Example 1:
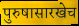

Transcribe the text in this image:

पुरुषासारखेच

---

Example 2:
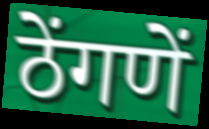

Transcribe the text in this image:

ठेंगणें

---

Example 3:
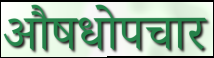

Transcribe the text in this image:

औषधोपचार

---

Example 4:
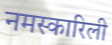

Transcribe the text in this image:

नमस्कारिली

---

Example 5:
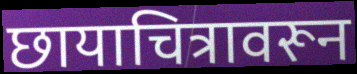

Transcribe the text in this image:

छायाचित्रावरून